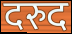
दरुद